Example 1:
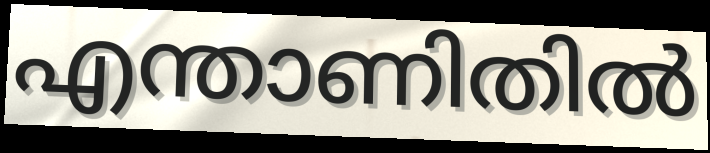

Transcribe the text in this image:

എന്താണിതിൽ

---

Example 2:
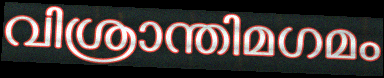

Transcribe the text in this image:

വിശ്രാന്തിമഗമം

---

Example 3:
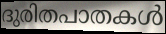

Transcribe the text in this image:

ദുരിതപാതകൾ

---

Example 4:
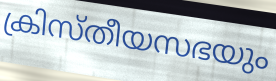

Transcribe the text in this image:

ക്രിസ്തീയസഭയും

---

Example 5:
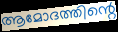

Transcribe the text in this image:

ആമോദത്തിന്റെ